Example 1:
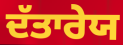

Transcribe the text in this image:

ਦੱਤਾਰੇਯ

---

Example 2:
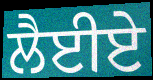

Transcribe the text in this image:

ਲੈਈਏ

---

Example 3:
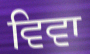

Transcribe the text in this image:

ਵਿਵਾ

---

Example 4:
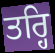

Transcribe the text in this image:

ਤਰ੍ਹਿ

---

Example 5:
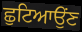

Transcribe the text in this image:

ਛੁਟਿਆਉਂਣ